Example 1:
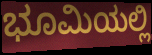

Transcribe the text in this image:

ಭೂಮಿಯಲ್ಲಿ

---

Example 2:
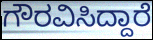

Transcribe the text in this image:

ಗೌರವಿಸಿದ್ದಾರೆ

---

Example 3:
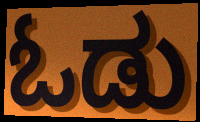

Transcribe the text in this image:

ಓಡು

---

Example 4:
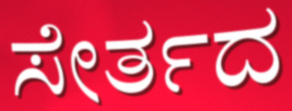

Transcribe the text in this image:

ಸೇರ್ತದ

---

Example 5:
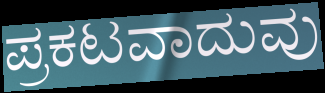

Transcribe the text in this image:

ಪ್ರಕಟವಾದುವು